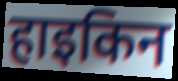
हाइकिन